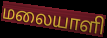
மலையாளி